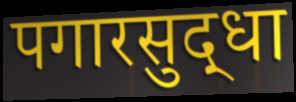
पगारसुद्धा